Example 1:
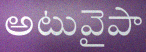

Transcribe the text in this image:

అటువైపా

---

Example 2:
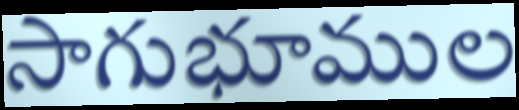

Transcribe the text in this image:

సాగుభూముల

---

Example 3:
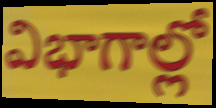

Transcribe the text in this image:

విభాగాల్లో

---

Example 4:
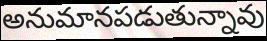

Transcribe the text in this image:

అనుమానపడుతున్నావు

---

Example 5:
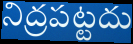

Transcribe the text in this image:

నిద్రపట్టదు